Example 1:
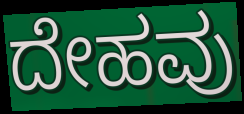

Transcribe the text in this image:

ದೇಹವು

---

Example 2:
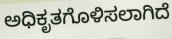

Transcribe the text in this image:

ಅಧಿಕೃತಗೊಳಿಸಲಾಗಿದೆ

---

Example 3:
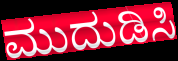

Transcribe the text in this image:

ಮುದುಡಿಸಿ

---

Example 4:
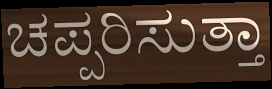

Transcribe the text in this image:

ಚಪ್ಪರಿಸುತ್ತಾ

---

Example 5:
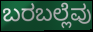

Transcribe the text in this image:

ಬರಬಲ್ಲೆವು